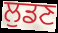
ਲੁਡਣ